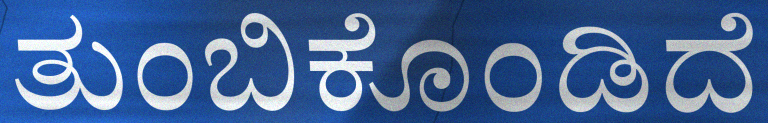
ತುಂಬಿಕೊಂಡಿದೆ